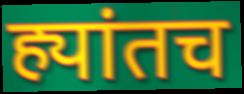
ह्यांतच